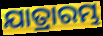
ଯାତ୍ରାରମ୍ଭ